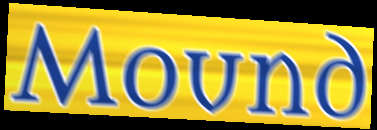
Mound